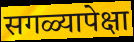
सगळ्यापेक्षा